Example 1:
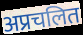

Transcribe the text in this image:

अप्रचलित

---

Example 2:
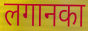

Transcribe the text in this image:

लगानका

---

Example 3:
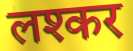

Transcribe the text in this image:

लश्कर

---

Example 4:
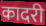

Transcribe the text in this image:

कादरी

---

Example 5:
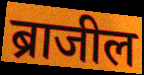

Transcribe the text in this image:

ब्राजील